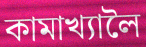
কামাখ্যালৈ